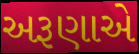
અરૂણાએ